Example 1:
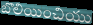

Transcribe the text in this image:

బొలియించియు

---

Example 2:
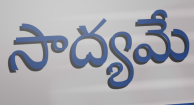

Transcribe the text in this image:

సాద్యమే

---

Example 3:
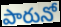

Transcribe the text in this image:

పారునో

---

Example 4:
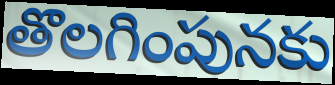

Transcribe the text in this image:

తొలగింపునకు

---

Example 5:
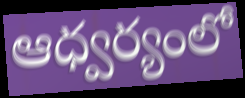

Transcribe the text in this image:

ఆధ్వర్యంలో